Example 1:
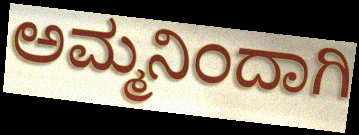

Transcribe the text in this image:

ಅಮ್ಮನಿಂದಾಗಿ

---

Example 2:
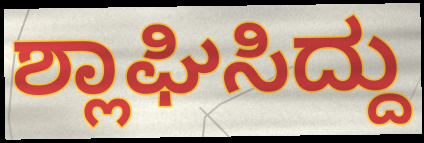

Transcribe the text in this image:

ಶ್ಲಾಘಿಸಿದ್ದು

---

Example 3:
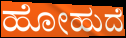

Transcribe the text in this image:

ಹೋಹುದೆ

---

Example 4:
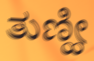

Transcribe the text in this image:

ತುಣ್ಹೀ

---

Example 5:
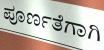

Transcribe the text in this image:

ಪೂರ್ಣತೆಗಾಗಿ